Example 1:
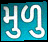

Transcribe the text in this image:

મુળુ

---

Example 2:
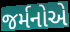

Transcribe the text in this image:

જર્મનોએ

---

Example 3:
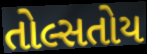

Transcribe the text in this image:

તોલ્સતોય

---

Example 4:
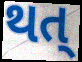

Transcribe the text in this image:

થત્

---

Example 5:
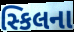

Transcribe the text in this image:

સ્કિલના